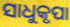
ସାଧୁକୃପା